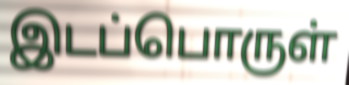
இடப்பொருள்